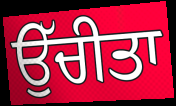
ਉੱਚੀਤਾ